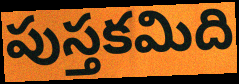
పుస్తకమిది